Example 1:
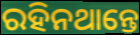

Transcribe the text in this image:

ରହିନଥାନ୍ତେ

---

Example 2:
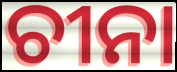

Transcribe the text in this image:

ଚୀନା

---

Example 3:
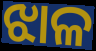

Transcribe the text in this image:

ଝାଳ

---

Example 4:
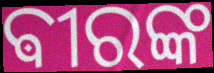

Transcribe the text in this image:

ଵୀରଙ୍କ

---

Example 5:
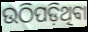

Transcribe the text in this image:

ଉଠିପଡ଼ିଥିବା